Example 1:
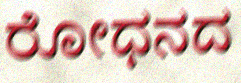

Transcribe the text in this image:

ರೋಧನದ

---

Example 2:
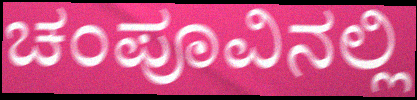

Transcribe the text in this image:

ಚಂಪೂವಿನಲ್ಲಿ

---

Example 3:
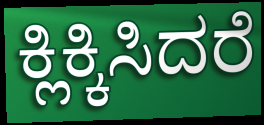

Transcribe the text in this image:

ಕ್ಲಿಕ್ಕಿಸಿದರೆ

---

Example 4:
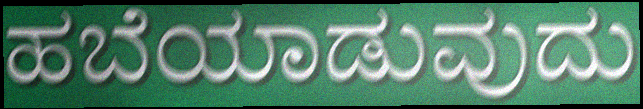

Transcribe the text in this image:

ಹಬೆಯಾಡುವುದು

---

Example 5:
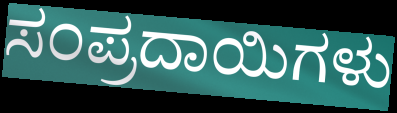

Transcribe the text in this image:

ಸಂಪ್ರದಾಯಿಗಳು